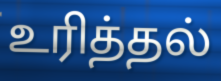
உரித்தல்